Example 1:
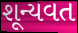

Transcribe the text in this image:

શૂન્યવત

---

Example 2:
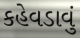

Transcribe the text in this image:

કહેવડાવું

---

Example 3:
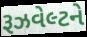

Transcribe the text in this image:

રૂઝવેલ્ટને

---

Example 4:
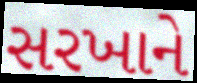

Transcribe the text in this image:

સરખાને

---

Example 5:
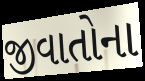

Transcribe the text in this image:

જીવાતોના